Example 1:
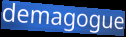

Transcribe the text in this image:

demagogue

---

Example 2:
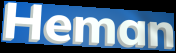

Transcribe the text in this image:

Heman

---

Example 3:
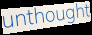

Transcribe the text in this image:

unthought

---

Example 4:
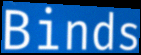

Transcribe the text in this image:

Binds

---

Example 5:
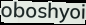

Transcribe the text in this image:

oboshyoi